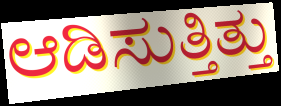
ಆಡಿಸುತ್ತಿತ್ತು